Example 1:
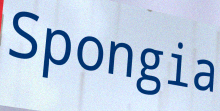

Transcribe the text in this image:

Spongia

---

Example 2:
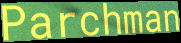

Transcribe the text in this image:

Parchman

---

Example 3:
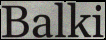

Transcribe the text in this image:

Balki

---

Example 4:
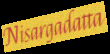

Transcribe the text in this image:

Nisargadatta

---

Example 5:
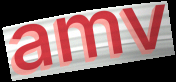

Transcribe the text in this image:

amv